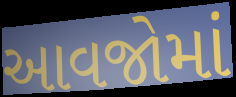
આવજોમાં